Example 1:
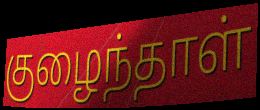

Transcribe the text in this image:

குழைந்தாள்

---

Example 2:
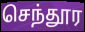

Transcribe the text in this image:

செந்தூர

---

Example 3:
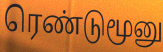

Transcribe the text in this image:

ரெண்டுமூனு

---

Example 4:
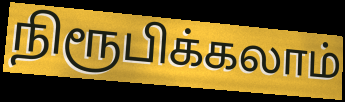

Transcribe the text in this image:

நிரூபிக்கலாம்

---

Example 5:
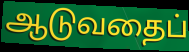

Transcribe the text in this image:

ஆடுவதைப்